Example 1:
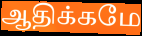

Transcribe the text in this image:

ஆதிக்கமே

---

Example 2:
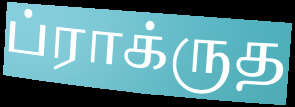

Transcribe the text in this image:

ப்ராக்ருத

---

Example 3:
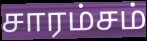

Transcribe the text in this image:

சாரம்சம்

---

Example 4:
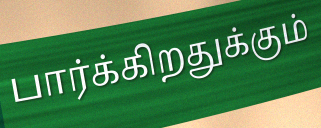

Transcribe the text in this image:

பார்க்கிறதுக்கும்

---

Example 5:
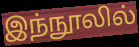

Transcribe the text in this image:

இந்நூலில்